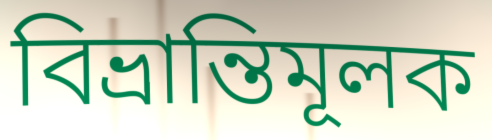
বিভ্রান্তিমূলক